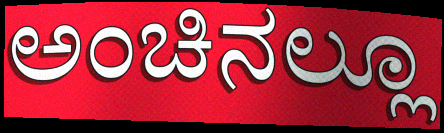
ಅಂಚಿನಲ್ಲೂ